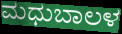
ಮಧುಬಾಲಳ